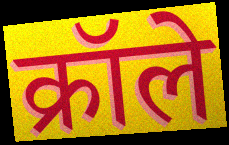
क्रॉले